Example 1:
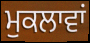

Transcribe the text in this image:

ਮੁਕਲਾਵਾਂ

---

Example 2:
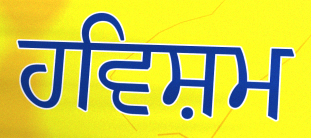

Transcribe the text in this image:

ਹਵਿਸ਼ਮ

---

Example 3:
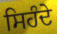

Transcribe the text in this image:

ਸਿਹੰਦੇ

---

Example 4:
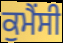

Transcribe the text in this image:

ਕੁਮੈਂਸੀ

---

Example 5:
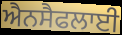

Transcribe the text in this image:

ਐਨਸੈਫਲਾਈ